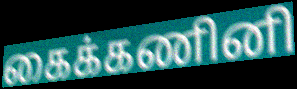
கைக்கணினி